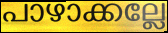
പാഴാക്കല്ലേ